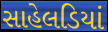
સાહેલડિયાં